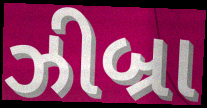
ઝીબ્રા